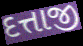
દત્તાજી